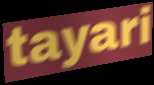
tayari